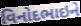
વિનોદભાઇને